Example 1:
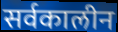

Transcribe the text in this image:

सर्वकालीन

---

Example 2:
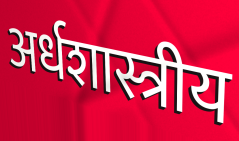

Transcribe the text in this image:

अर्धशास्त्रीय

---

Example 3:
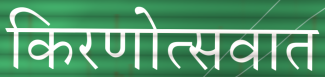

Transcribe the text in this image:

किरणोत्सवात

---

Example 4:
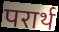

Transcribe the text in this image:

परार्थ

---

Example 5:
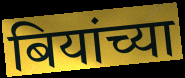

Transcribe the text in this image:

बियांच्या